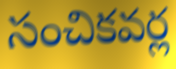
సంచికవర్ల